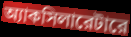
অ্যাকসিলারেটারে